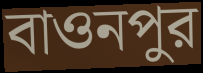
বাওনপুর